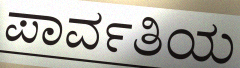
ಪಾರ್ವತಿಯ